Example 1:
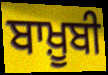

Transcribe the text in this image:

ਬਾਖ਼ੂਬੀ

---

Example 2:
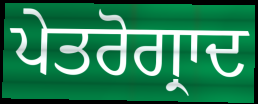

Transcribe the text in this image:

ਪੇਤਰੋਗ੍ਰਾਦ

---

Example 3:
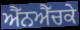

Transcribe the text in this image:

ਐੱਨਐੱਚਕੇ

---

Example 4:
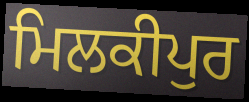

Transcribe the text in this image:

ਮਿਲਕੀਪੁਰ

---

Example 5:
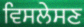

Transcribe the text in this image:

ਵਿਸਲੇਸਣ